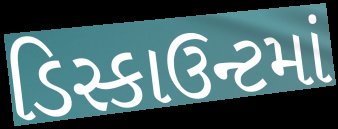
ડિસ્કાઉન્ટમાં